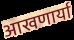
आखणार्या